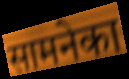
सामनेका